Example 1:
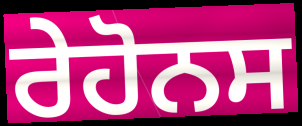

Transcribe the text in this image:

ਰੇਹੋਨਸ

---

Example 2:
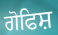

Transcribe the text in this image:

ਗੋਫਿਸ਼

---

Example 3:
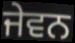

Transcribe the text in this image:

ਜੇਵਨ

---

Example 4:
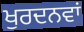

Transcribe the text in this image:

ਖੁਰਦਨਵਾਂ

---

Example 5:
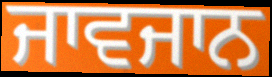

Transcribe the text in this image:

ਜਾਵਜਾਨ